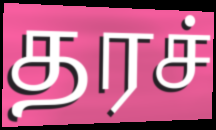
தரச்